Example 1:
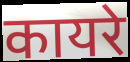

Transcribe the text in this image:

कायरे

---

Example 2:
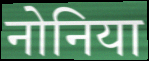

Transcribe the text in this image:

नोनिया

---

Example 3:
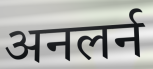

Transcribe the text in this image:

अनलर्न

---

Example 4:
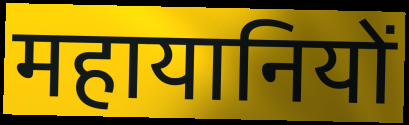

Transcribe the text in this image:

महायानियों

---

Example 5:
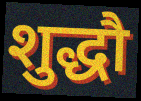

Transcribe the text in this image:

शुद्धौ